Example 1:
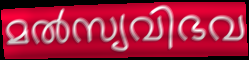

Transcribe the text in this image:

മൽസ്യവിഭവ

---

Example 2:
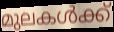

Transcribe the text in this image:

മുലകൾക്ക്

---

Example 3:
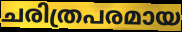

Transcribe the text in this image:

ചരിത്രപരമായ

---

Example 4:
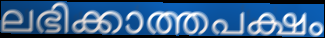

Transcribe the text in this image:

ലഭിക്കാത്തപക്ഷം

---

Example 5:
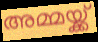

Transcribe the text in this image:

അമ്മയ്ക്ക്